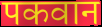
पकवान